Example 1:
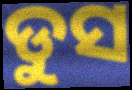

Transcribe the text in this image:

ଡୁସ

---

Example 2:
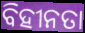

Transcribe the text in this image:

ବିହୀନତା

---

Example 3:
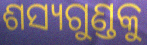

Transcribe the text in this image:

ଶସ୍ୟଗୁଣ୍ଡକୁ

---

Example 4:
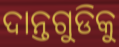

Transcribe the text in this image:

ଦାନ୍ତଗୁଡିକୁ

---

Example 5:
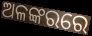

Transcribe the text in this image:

ଅଳଙ୍କରରେ